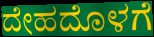
ದೇಹದೊಳಗೆ